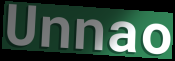
Unnao